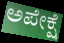
ಅಪೇಕ್ಷೆ